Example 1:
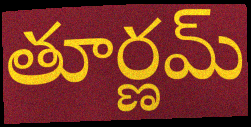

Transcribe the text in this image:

తూర్ణమ్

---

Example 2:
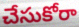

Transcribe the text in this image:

చేసుకోరా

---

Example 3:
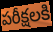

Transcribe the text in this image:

పరీక్షలకి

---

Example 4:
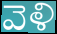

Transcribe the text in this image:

వెళి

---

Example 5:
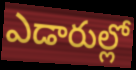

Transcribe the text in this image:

ఎడారుల్లో